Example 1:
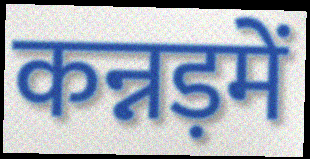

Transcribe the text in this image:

कन्नड़में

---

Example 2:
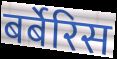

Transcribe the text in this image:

बर्बेरिस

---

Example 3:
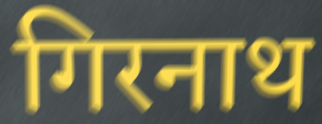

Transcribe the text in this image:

गिरनाथ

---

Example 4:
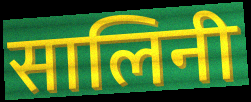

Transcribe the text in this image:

सालिनी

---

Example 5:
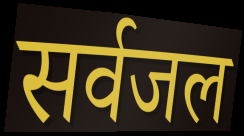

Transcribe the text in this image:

सर्वजल